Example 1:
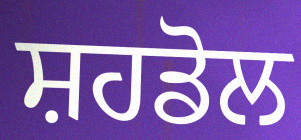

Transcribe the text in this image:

ਸ਼ਹਡੋਲ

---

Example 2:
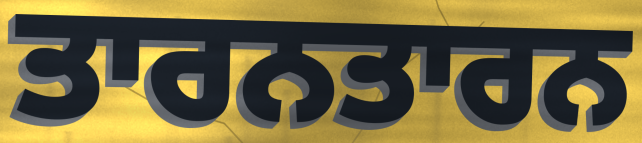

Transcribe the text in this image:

ਤਾਰਨਤਾਰਨ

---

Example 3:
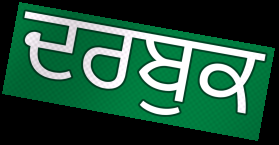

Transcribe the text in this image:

ਦਰਬੁਕ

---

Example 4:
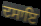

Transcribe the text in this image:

ਦਸਾਇ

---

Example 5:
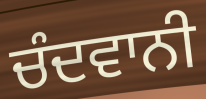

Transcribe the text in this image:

ਚੰਦਵਾਨੀ